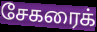
சேகரைக்